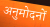
अनुमोदनों